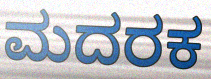
ಮದರಕ